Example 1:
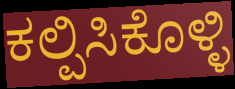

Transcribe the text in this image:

ಕಲ್ಪಿಸಿಕೊಳ್ಳಿ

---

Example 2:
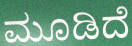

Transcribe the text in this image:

ಮೂಡಿದೆ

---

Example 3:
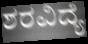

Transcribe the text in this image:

ಶರವಿದ್ಯೆ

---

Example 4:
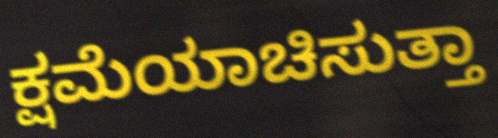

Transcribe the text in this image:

ಕ್ಷಮೆಯಾಚಿಸುತ್ತಾ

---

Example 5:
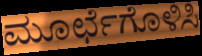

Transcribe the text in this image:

ಮೂರ್ಛೆಗೊಳಿಸಿ